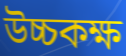
উচ্চকক্ষ